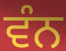
ਵੰਨ